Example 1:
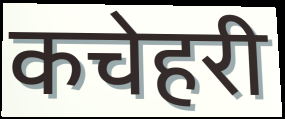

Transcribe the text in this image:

कचेहरी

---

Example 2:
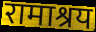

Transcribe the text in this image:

रामाश्रय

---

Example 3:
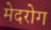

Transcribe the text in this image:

मेदरोग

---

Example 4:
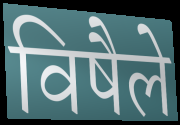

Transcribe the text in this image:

विषैले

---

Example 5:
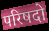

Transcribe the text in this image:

परिषदो